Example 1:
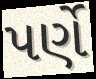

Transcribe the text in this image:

પર્ણે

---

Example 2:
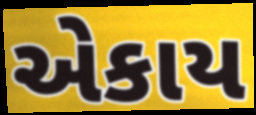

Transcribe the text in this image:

એકાય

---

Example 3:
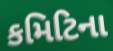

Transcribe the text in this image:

કમિટિના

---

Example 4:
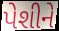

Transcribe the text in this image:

પેશીને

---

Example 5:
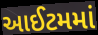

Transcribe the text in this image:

આઈટમમાં